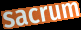
sacrum